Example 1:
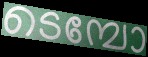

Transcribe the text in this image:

ടെമ്പോ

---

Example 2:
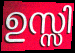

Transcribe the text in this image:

ഉസ്സി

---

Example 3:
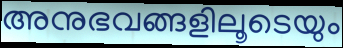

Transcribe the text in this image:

അനുഭവങ്ങളിലൂടെയും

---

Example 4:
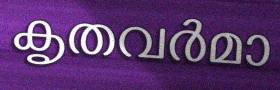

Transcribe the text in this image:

കൃതവർമാ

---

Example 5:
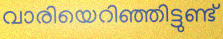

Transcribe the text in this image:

വാരിയെറിഞ്ഞിട്ടുണ്ട്